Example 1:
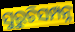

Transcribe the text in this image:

ସୁରୁଚିସମ୍ପନ୍ନ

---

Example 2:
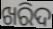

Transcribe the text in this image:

ଖରିଦ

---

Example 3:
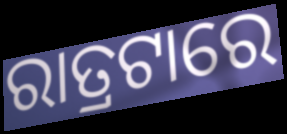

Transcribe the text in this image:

ରାତ୍ରଟାରେ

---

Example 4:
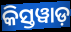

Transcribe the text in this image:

କିସ୍ତୱାଡ଼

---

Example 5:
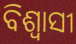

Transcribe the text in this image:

ବିଶ୍ୱାସୀ